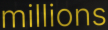
millions